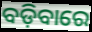
ବଡ଼ିବାରେ